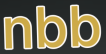
nbb